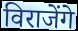
विराजेंगे